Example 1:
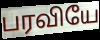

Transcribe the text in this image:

பரவியே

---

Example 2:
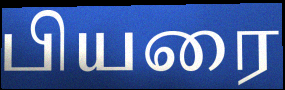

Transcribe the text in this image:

பியரை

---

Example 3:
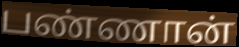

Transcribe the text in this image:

பண்ணான்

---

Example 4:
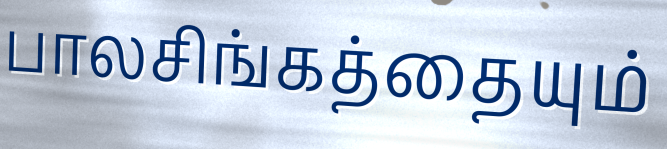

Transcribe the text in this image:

பாலசிங்கத்தையும்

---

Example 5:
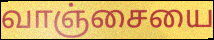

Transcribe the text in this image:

வாஞ்சையை